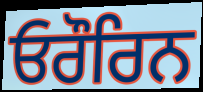
ਓਰੌਰਿਨ